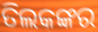
ତିଲକଙ୍କର